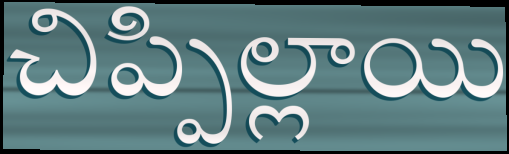
చిప్పిల్లాయి